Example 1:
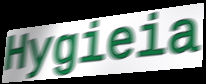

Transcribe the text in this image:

Hygieia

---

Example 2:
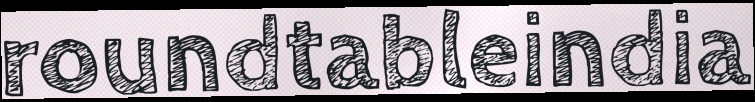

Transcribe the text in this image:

roundtableindia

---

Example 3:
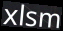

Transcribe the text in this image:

xlsm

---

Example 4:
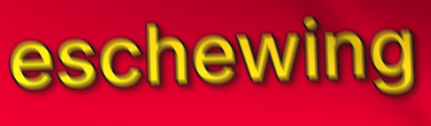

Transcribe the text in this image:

eschewing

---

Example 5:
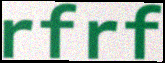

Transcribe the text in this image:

rfrf